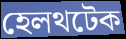
হেলথটেক